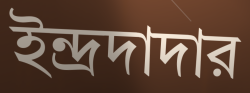
ইন্দ্রদাদার